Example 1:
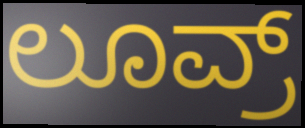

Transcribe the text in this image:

ಲೂವ್ರ್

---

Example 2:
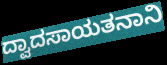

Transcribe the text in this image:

ದ್ವಾದಸಾಯತನಾನಿ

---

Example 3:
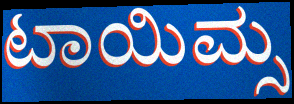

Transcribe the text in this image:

ಟಾಯಿಮ್ಸ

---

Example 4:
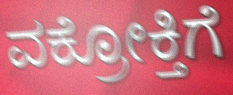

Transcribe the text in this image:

ವಕ್ರೋಕ್ತಿಗೆ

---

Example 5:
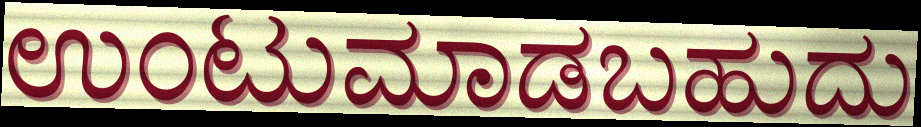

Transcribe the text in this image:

ಉಂಟುಮಾಡಬಹುದು